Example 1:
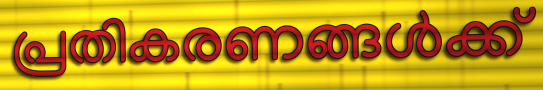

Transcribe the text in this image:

പ്രതികരണങ്ങൾക്ക്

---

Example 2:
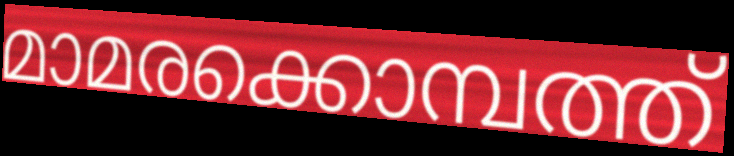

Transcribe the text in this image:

മാമരക്കൊമ്പത്ത്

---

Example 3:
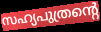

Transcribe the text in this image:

സഹ്യപുത്രന്റെ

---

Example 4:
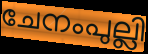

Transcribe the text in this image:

ചേനംപുല്ലി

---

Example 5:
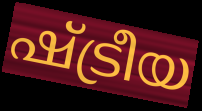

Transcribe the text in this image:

ഷ്ട്രീയ